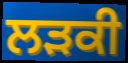
ਲੜਕੀ